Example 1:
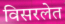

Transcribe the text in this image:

विसरलेत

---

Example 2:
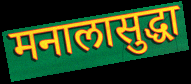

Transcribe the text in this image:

मनालासुद्धा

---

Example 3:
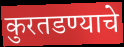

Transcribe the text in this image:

कुरतडण्याचे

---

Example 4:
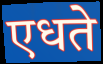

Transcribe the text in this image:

एधते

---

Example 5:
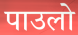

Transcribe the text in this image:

पाउलो